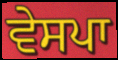
ਵੇਸਪਾ